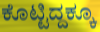
ಕೊಟ್ಟಿದ್ದಕ್ಕೂ